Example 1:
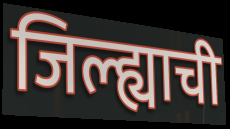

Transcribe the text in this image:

जिल्ह्याची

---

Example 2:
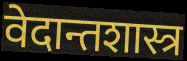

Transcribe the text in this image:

वेदान्तशास्त्र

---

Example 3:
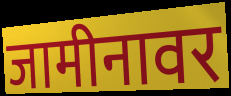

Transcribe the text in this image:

जामीनावर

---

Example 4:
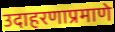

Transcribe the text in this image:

उदाहरणाप्रमाणे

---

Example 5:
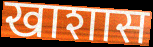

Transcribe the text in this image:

खाशास